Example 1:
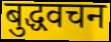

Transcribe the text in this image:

बुद्धवचन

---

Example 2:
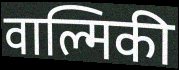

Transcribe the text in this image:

वाल्मिकी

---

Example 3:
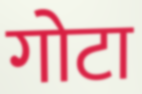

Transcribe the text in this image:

गोटा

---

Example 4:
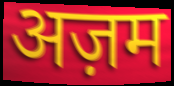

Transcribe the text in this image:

अज़म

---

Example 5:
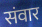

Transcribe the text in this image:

संवार